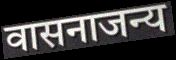
वासनाजन्य